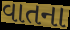
વાતના